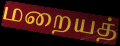
மறையத்